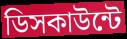
ডিসকাউন্টে